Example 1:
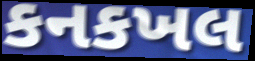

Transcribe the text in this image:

કનકખલ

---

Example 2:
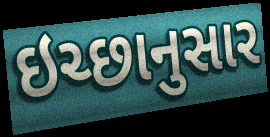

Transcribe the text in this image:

ઇચ્છાનુસાર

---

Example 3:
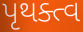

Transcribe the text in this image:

પૃથક્ત્વ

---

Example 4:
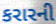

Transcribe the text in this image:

કરારની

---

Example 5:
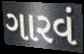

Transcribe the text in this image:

ગારવં